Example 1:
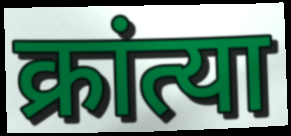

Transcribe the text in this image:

क्रांत्या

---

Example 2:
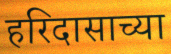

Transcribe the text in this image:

हरिदासाच्या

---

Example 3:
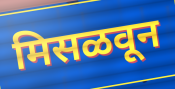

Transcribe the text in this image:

मिसळवून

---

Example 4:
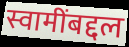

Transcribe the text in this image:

स्वामींबद्दल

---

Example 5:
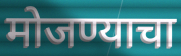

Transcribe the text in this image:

मोजण्याचा